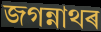
জগন্নাথৰ